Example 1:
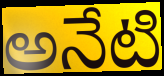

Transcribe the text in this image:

అనేటి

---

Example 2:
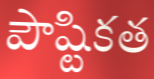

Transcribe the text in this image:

పౌష్టికత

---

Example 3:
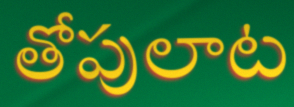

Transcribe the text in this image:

తోపులాట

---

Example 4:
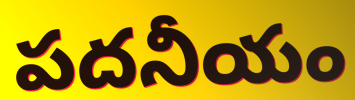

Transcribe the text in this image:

పదనీయం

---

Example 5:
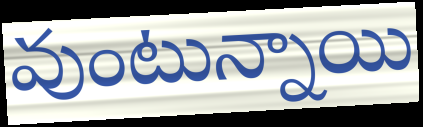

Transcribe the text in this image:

వుంటున్నాయి